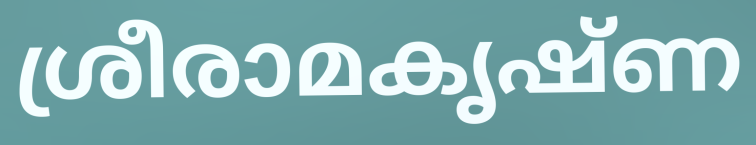
ശ്രീരാമകൃഷ്ണ